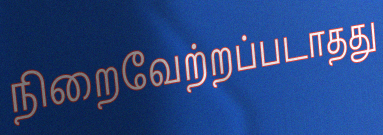
நிறைவேற்றப்படாதது